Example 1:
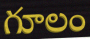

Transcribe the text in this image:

గూలం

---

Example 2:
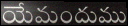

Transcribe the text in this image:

యేమందుము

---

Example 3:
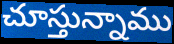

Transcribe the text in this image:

చూస్తున్నాము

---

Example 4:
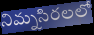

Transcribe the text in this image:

నిమ్నసిరలలో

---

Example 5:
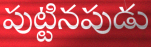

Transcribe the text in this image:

పుట్టినపుడు